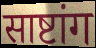
साष्टांग